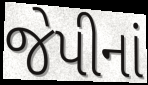
જેપીનાં